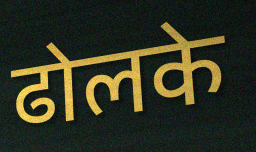
ढोलके